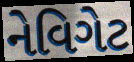
નેવિગેટ